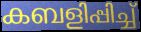
കബളിപ്പിച്ച്